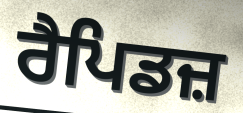
ਰੈਪਿਡਜ਼